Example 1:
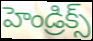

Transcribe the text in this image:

హెండ్రిక్స్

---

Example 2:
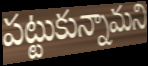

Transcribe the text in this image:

పట్టుకున్నామని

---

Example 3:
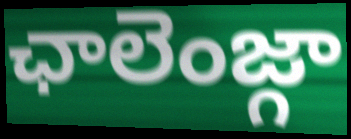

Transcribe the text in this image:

ఛాలెంజ్గా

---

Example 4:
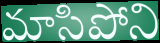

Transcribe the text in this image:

మాసిపోని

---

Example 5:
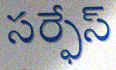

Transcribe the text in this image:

సర్ఫేస్